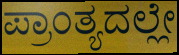
ಪ್ರಾಂತ್ಯದಲ್ಲೇ